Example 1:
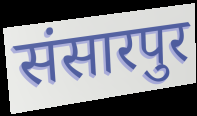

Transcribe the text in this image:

संसारपुर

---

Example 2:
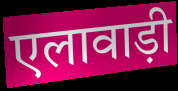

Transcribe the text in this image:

एलावाड़ी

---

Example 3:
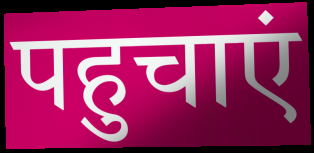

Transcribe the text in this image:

पहुचाएं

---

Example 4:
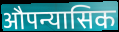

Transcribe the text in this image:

औपन्यासिक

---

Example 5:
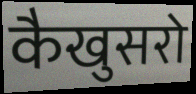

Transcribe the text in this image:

कैखुसरो